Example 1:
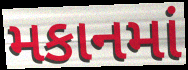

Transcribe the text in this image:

મકાનમાં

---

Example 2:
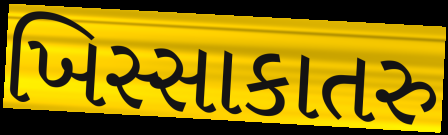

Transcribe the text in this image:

ખિસ્સાકાતરુ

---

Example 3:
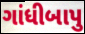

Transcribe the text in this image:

ગાંધીબાપુ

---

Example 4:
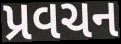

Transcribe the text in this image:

પ્રવચન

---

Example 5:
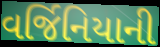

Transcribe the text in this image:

વર્જિનિયાની